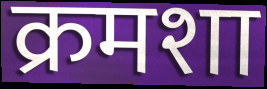
क्रमशा